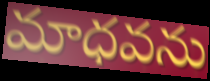
మాధవను